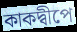
কাকদ্বীপে